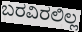
ಬರವಿರಲಿಲ್ಲ